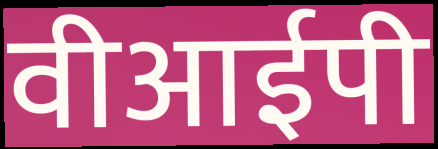
वीआईपी